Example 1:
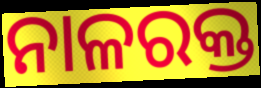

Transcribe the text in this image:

ନାଳରକ୍ତ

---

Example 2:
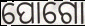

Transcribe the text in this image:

ପୋଗୋ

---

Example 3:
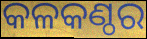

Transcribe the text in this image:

କଳକଣ୍ଠର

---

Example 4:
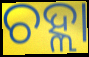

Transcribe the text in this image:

ଚହ୍ଲା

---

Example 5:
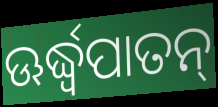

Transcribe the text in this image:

ଊର୍ଦ୍ଧ୍ବପାତନ୍